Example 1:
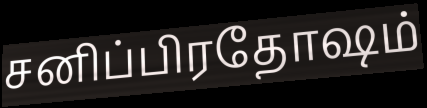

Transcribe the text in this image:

சனிப்பிரதோஷம்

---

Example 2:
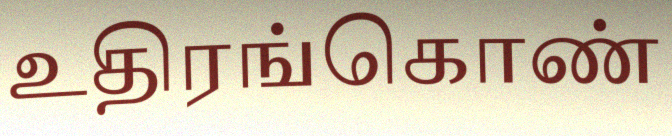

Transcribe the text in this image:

உதிரங்கொண்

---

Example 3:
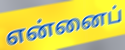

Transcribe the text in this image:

என்னைப்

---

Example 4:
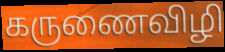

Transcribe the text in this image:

கருணைவிழி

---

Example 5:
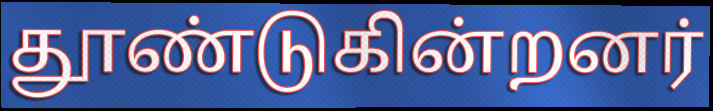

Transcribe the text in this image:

தூண்டுகின்றனர்